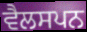
ਵੈਲਸਪਨ